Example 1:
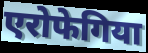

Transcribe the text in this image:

एरोफेगिया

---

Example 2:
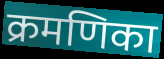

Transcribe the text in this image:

क्रमणिका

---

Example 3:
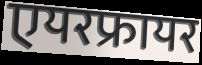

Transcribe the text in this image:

एयरफ्रायर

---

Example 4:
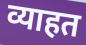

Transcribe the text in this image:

व्याहत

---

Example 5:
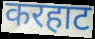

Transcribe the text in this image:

करहाट